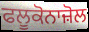
ਫਲੂਕੋਨਾਜ਼ੋਲ